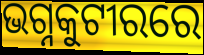
ଭଗ୍ନକୁଟୀରରେ